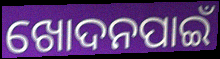
ଖୋଦନପାଇଁ